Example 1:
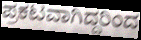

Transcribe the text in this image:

ಪ್ರಕಟವಾಗಿದ್ದರಿಂದ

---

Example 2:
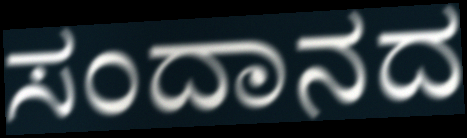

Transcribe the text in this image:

ಸಂದಾನದ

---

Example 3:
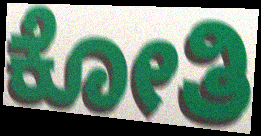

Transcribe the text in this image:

ಕೋತಿ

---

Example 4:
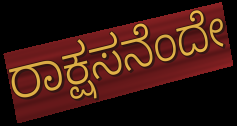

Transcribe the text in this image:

ರಾಕ್ಷಸನೆಂದೇ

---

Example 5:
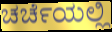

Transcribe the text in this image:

ಚರ್ಚೆಯಲ್ಲಿ